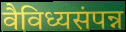
वैविध्यसंपन्न